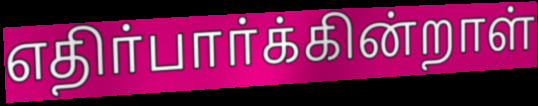
எதிர்பார்க்கின்றாள்